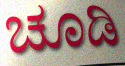
ಚೂಡಿ